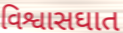
વિશ્વાસઘાત